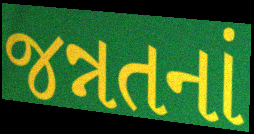
જન્નતનાં